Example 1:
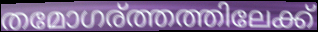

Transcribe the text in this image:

തമോഗര്ത്തത്തിലേക്ക്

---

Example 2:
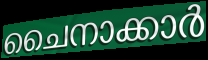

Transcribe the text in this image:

ചൈനാക്കാർ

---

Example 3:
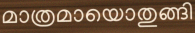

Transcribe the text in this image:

മാത്രമായൊതുങ്ങി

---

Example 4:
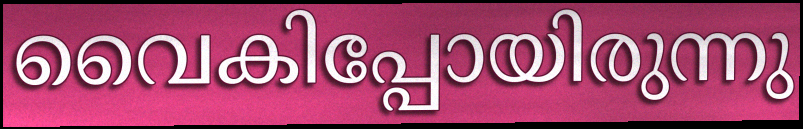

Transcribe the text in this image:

വൈകിപ്പോയിരുന്നു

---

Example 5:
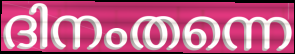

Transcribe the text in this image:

ദിനംതന്നെ